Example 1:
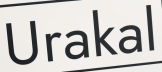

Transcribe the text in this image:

Urakal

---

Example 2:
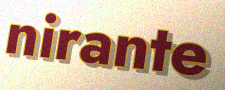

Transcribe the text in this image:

nirante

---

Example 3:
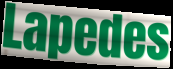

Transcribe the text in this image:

Lapedes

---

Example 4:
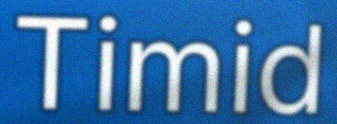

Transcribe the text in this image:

Timid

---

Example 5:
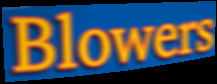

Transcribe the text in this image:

Blowers